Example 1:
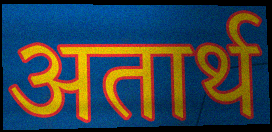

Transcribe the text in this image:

अतार्थ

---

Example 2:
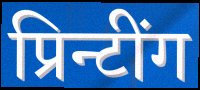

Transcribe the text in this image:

प्रिन्टींग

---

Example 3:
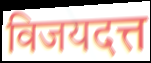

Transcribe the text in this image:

विजयदत्त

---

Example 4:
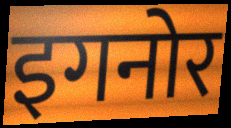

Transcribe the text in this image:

इगनोर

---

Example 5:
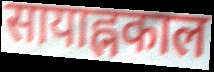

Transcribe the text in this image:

सायाह्नकाल